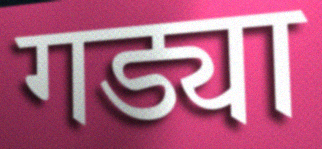
गड्या